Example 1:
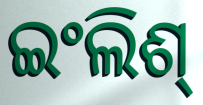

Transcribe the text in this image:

ଇଂଲିଶ୍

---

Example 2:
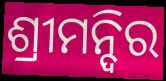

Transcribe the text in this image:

ଶ୍ରୀମନ୍ଦିର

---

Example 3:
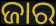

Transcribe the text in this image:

ଜାର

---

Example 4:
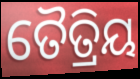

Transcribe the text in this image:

ତୈତ୍ରିୟ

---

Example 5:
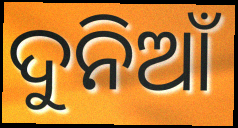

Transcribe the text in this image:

ଦୁନିଆଁ